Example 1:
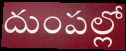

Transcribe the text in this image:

దుంపల్లో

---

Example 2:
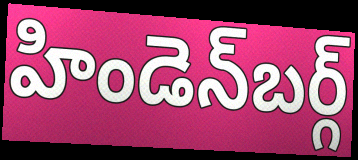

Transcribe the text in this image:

హిండెన్‌బర్గ్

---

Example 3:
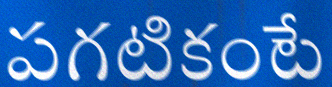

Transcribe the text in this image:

పగటికంటే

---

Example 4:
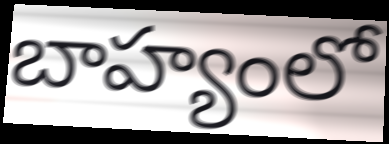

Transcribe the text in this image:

బాహ్యంలో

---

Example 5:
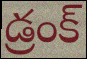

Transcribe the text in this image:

డ్రంక్